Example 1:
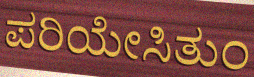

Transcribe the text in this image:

ಪರಿಯೇಸಿತುಂ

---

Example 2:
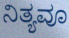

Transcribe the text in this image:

ನಿತ್ಯವೂ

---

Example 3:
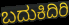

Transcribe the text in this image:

ಬದುಕಿದಿರಿ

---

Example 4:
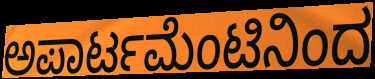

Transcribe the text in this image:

ಅಪಾರ್ಟಮೆಂಟಿನಿಂದ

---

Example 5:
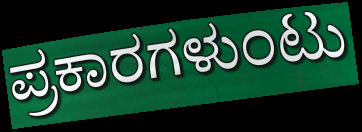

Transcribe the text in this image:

ಪ್ರಕಾರಗಳುಂಟು